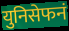
युनिसेफनं